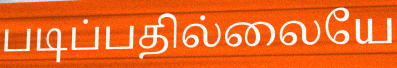
படிப்பதில்லையே